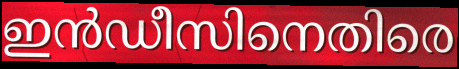
ഇൻഡീസിനെതിരെ